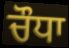
ਚੌਧਾ